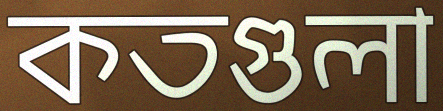
কতগুলা